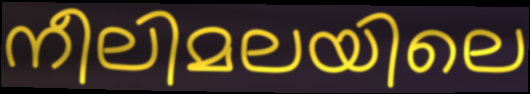
നീലിമലയിലെ